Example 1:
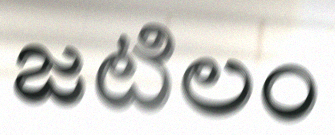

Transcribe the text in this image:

జటిలం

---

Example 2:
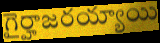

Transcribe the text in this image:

గైర్హాజరయ్యాయి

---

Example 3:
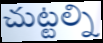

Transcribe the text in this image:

చుట్టల్ని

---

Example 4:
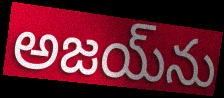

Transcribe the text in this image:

అజయ్‌ను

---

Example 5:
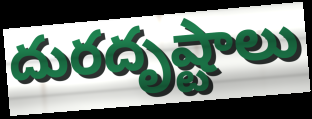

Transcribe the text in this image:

దురదృష్టాలు